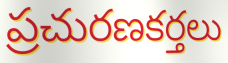
ప్రచురణకర్తలు